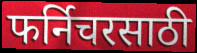
फर्निचरसाठी